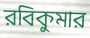
রবিকুমার